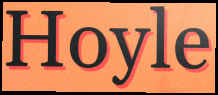
Hoyle